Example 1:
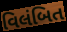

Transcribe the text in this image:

વિલંબિત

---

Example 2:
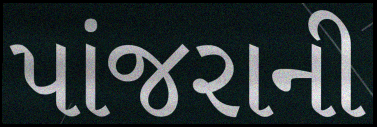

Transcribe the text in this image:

પાંજરાની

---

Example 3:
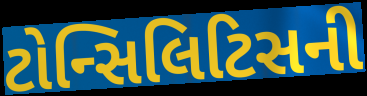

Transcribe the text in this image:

ટોન્સિલિટિસની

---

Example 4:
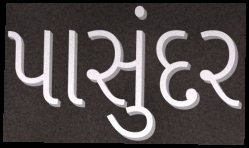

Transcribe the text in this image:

પાસુંદર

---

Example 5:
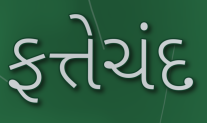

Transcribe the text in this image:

ફત્તેચંદ